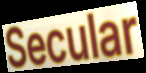
Secular